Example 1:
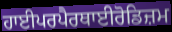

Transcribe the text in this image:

ਹਾਈਪਰਪੈਰਥਾਈਰੋਡਿਜ਼ਮ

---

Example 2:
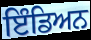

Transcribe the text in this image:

ਇੰਡਿਅਨ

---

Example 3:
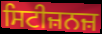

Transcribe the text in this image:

ਸਿਟੀਜ਼ਨਜ਼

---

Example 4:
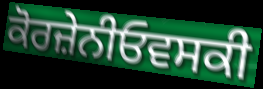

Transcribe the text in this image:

ਕੋਰਜ਼ੇਨੀਓਵਸਕੀ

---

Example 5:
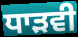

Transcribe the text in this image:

ਧਾੜਵੀ